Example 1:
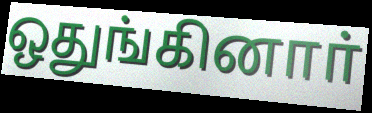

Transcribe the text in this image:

ஒதுங்கினார்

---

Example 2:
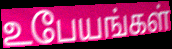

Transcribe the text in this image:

உபேயங்கள்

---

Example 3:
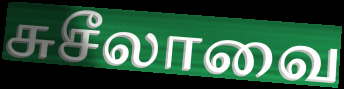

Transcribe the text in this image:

சுசீலாவை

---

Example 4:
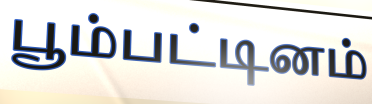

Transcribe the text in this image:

பூம்பட்டினம்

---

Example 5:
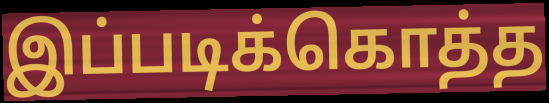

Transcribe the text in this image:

இப்படிக்கொத்த